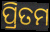
ପ୍ରିତମ